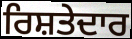
ਰਿਸ਼ਤੇਦਾਰ